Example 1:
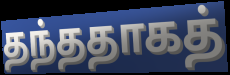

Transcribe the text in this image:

தந்ததாகத்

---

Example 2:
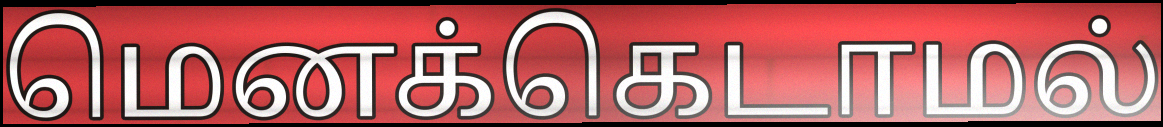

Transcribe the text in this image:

மெனக்கெடாமல்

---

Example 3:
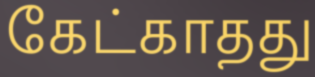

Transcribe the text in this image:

கேட்காதது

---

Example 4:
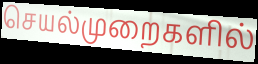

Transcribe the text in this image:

செயல்முறைகளில்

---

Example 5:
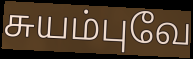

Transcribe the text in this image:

சுயம்புவே